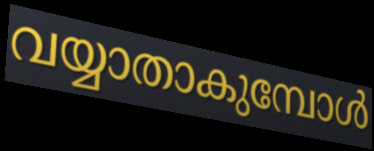
വയ്യാതാകുമ്പോൾ